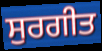
ਸੁਰਗੀਤ